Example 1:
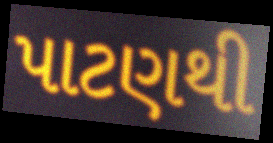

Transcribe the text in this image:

પાટણથી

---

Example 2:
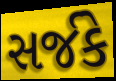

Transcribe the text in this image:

સર્જકે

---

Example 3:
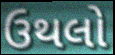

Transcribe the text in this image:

ઉથલો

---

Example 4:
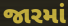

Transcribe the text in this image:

જારમાં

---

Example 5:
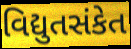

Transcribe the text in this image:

વિદ્યુતસંકેત